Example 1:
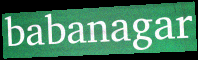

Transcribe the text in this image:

babanagar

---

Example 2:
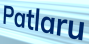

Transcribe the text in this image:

Patlaru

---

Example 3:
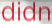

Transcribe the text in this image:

didn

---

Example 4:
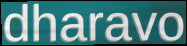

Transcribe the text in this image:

dharavo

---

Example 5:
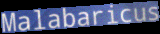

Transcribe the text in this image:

Malabaricus